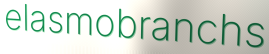
elasmobranchs